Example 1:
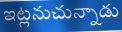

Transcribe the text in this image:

ఇట్లనుచున్నాడు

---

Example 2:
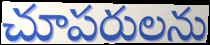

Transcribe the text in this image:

చూపరులను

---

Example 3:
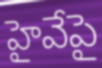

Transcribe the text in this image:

హైవేపై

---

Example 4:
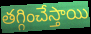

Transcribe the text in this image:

తగ్గించేస్తాయి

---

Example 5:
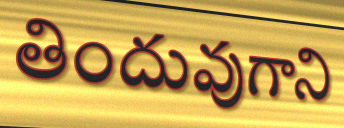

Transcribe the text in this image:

తిందువుగాని